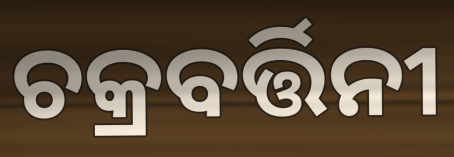
ଚକ୍ରବର୍ତ୍ତିନୀ